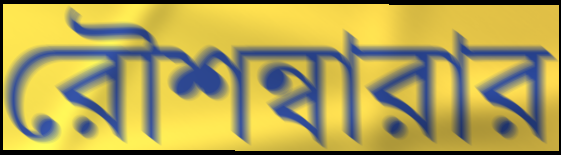
রৌশন্বারার